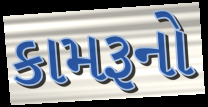
કામરૂનો